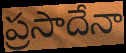
ప్రసాదేనా